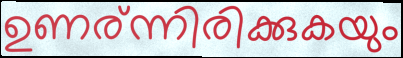
ഉണര്ന്നിരിക്കുകയും